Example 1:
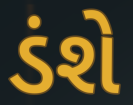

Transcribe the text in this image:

ડંશે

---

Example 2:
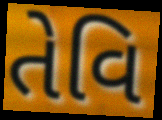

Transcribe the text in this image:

તેવિ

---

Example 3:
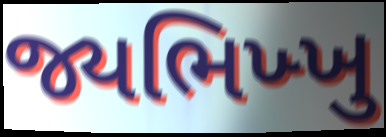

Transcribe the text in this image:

જ્યભિખ્ખુ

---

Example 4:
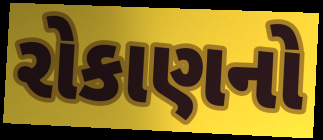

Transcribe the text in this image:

રોકાણનો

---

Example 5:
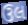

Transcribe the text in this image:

ઉલ